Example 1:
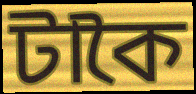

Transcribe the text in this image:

টাকৈ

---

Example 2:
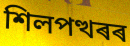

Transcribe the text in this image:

শিলপত্থৰৰ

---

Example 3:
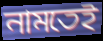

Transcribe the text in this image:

নামতেই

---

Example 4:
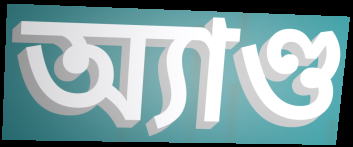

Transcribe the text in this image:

অ্যাণ্ড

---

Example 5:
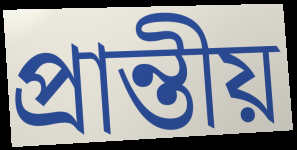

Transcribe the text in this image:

প্ৰান্তীয়